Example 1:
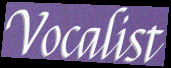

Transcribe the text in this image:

Vocalist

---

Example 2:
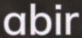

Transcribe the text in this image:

abir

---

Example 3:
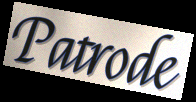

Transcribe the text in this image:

Patrode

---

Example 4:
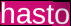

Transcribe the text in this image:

hasto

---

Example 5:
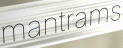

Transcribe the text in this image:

mantrams